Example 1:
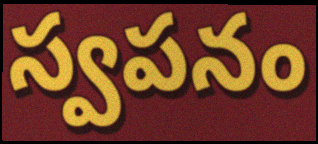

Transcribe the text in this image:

స్వపనం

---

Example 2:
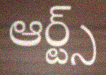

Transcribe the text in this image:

ఆర్ట్స్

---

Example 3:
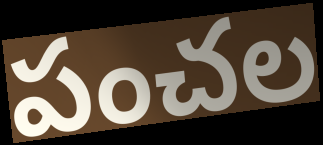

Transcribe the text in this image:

పంచల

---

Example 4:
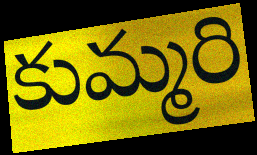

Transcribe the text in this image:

కుమ్మరి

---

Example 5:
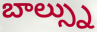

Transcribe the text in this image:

బాల్స్ను